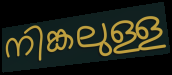
നിങ്കലുള്ള